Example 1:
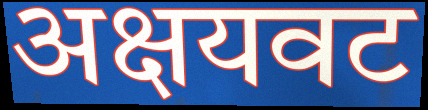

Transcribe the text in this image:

अक्षयवट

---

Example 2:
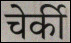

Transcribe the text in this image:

चेर्की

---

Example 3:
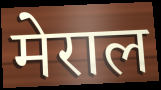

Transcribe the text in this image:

मेराल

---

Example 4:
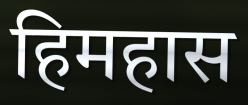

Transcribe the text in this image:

हिमहास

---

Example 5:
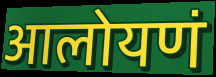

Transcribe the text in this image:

आलोयणं